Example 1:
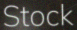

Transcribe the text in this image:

Stock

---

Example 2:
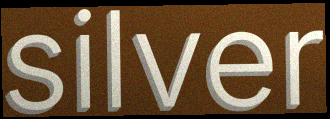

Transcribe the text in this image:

silver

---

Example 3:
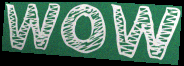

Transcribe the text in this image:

wow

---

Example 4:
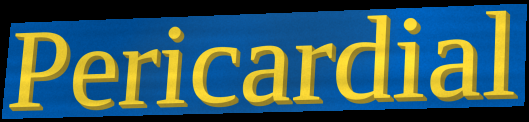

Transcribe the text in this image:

Pericardial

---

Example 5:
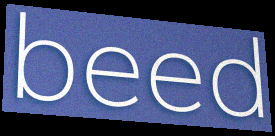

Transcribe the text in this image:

beed